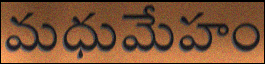
మధుమేహం